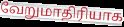
வேறுமாதிரியாக